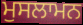
ਮੁਸਲਾਮਨ